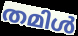
തമിൾ